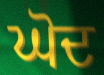
ਘੋਦ